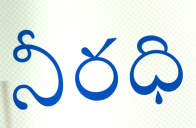
నీరధి